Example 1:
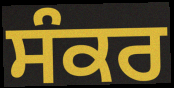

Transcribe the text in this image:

ਸੰਕਰ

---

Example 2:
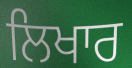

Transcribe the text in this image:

ਲਿਖਾਰ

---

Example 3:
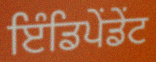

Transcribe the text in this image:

ਇੰਡਿਪੇਂਡੇਂਟ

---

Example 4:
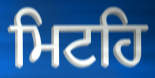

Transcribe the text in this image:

ਮਿਟਹਿ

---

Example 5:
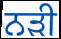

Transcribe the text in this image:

ਨੜੀ